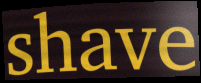
shave